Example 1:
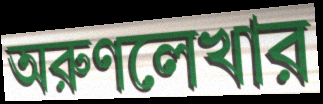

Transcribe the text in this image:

অরুণলেখার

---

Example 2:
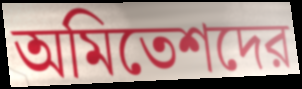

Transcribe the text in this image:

অমিতেশদের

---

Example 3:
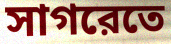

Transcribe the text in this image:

সাগরেতে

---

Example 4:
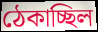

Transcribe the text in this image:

ঠেকাচ্ছিল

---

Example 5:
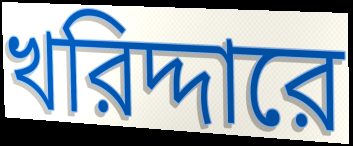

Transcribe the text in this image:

খরিদ্দারে